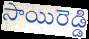
సాయిరెడ్డి